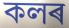
কলৰ